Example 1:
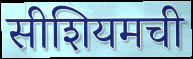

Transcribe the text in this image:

सीशियमची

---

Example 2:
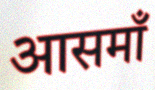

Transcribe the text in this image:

आसमाँ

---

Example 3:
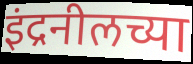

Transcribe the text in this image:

इंद्रनीलच्या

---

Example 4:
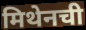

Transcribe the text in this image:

मिथेनची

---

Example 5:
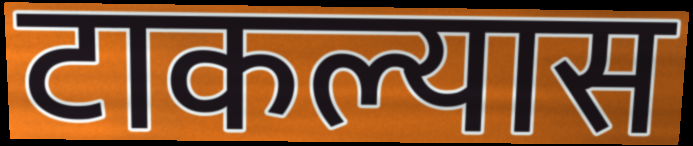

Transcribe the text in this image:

टाकल्यास